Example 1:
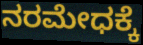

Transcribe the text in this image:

ನರಮೇಧಕ್ಕೆ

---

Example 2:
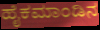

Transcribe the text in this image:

ಹೈಕಮಾಂಡಿನ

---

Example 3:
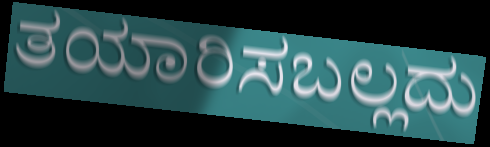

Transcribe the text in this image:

ತಯಾರಿಸಬಲ್ಲದು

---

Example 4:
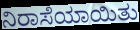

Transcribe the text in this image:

ನಿರಾಸೆಯಾಯಿತು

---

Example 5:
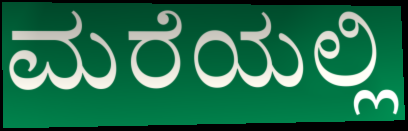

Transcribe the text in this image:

ಮರೆಯಲ್ಲಿ